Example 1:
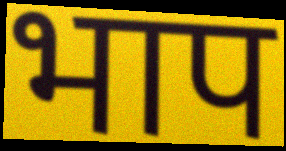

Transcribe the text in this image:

भाप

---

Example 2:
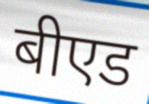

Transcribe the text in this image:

बीएड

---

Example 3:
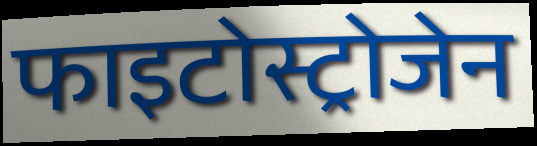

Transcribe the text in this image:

फाइटोस्ट्रोजेन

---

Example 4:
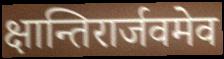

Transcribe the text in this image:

क्षान्तिरार्जवमेव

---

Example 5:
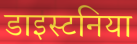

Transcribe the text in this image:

डाइस्टनिया